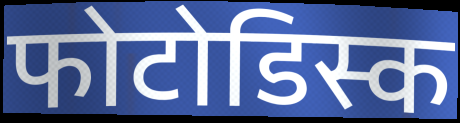
फोटोडिस्क